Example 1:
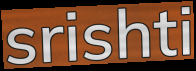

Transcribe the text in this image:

srishti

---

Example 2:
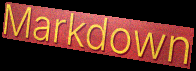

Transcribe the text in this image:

Markdown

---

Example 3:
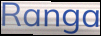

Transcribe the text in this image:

Ranga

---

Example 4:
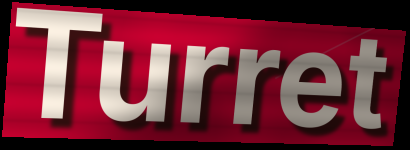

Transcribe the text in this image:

Turret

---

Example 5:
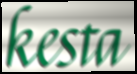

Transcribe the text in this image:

kesta